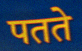
पतते